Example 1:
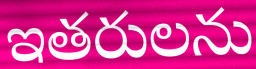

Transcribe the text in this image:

ఇతరులను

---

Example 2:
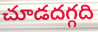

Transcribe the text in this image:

చూడదగ్గది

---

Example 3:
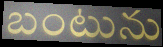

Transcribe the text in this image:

బంటును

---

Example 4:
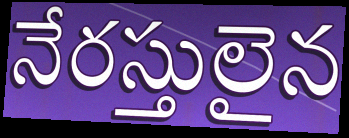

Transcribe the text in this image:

నేరస్తులైన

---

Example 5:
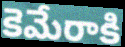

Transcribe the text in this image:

కెమేరాకి